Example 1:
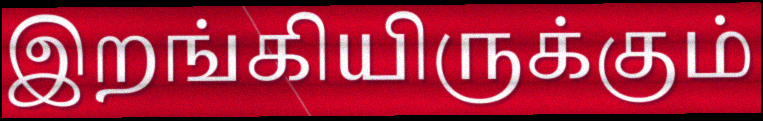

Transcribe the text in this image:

இறங்கியிருக்கும்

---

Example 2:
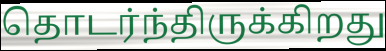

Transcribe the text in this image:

தொடர்ந்திருக்கிறது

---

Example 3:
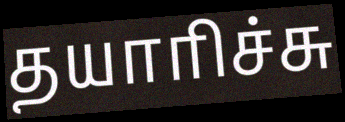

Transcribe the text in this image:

தயாரிச்சு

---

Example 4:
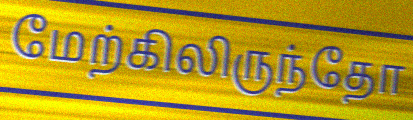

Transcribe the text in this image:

மேற்கிலிருந்தோ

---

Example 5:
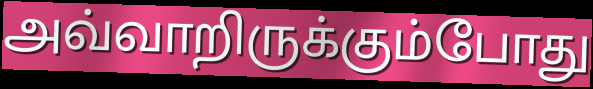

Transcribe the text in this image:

அவ்வாறிருக்கும்போது